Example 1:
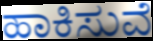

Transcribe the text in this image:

ಹಾಕಿಸುವೆ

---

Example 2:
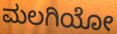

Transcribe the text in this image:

ಮಲಗಿಯೋ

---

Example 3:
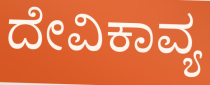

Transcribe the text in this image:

ದೇವಿಕಾವ್ಯ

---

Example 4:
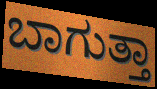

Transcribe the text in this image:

ಬಾಗುತ್ತಾ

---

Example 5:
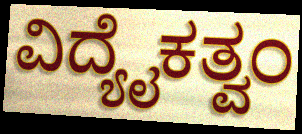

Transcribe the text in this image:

ವಿದ್ಯೈಕತ್ವಂ